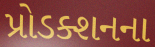
પ્રોડક્શનના